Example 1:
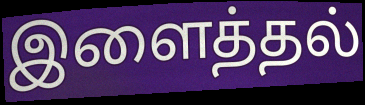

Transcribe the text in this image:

இளைத்தல்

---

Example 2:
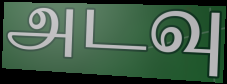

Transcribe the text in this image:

அடவு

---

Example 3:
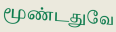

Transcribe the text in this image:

மூண்டதுவே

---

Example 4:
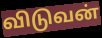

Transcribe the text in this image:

விடுவன்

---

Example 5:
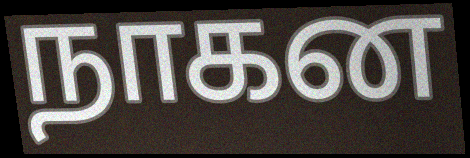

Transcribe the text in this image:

நாகன